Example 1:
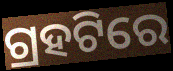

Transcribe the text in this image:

ଗ୍ରହଟିରେ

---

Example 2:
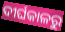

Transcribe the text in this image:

ଦୀର୍ଘକାଳରୁ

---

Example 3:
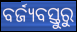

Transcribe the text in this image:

ବର୍ଜ୍ୟବସ୍ତୁରୁ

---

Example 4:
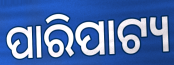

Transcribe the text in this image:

ପାରିପାଟ୍ୟ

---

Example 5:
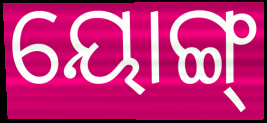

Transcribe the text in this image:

ୟୋଙ୍ଗ୍